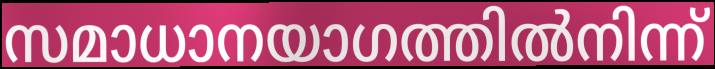
സമാധാനയാഗത്തിൽനിന്ന്